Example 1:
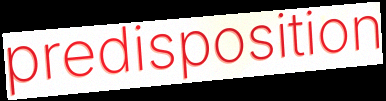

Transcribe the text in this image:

predisposition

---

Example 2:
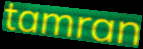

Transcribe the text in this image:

tamran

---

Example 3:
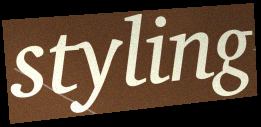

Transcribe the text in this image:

styling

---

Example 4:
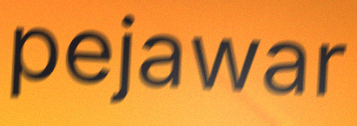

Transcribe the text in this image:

pejawar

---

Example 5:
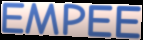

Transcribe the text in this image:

EMPEE